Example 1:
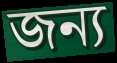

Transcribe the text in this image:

জন্য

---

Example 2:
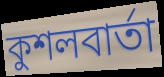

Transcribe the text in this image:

কুশলবার্তা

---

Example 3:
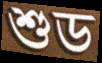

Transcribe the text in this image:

শুড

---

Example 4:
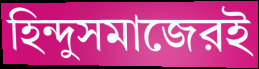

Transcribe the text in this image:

হিন্দুসমাজেরই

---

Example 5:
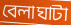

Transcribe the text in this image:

বেলাঘাটা